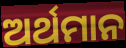
ଅର୍ଥମାନ